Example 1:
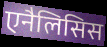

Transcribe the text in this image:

एनैलिसिस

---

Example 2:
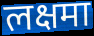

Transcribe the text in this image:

लक्षमा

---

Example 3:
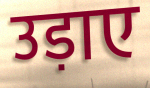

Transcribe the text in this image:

उड़ाए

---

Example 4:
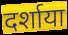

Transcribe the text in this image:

दर्शाया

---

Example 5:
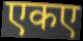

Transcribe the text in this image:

एकए